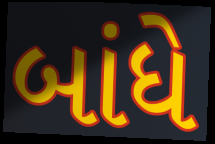
બાંધે